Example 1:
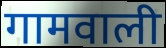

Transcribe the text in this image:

गामवाली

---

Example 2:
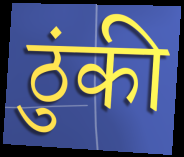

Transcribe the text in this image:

ठुंकी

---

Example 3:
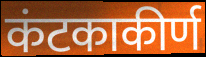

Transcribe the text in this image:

कंटकाकीर्ण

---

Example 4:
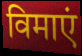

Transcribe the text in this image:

विमाएं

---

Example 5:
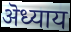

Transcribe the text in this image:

ऄध्याय